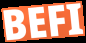
BEFI